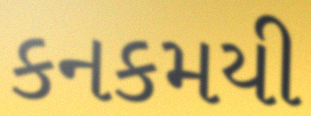
કનકમયી